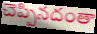
చెప్పినదంతా